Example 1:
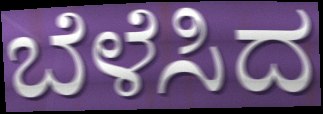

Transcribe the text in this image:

ಬೆಳೆಸಿದ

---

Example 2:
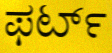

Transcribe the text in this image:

ಫರ್ಟ್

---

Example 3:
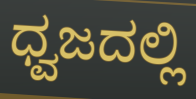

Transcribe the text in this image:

ಧ್ವಜದಲ್ಲಿ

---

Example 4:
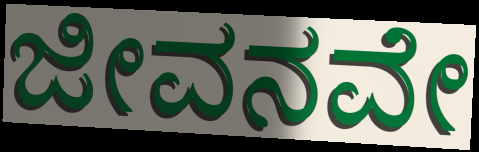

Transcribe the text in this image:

ಜೀವನವೇ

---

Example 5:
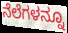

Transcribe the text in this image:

ನೆಲೆಗಳನ್ನೂ